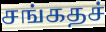
சங்கதச்